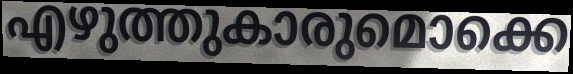
എഴുത്തുകാരുമൊക്കെ